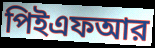
পিইএফআর